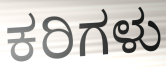
ಕರಿಗಳು